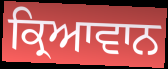
ਕ੍ਰਿਆਵਾਨ